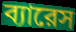
ব্যারেস